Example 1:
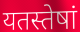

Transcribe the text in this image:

यतस्तेषां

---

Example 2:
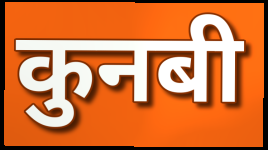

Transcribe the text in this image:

कुनबी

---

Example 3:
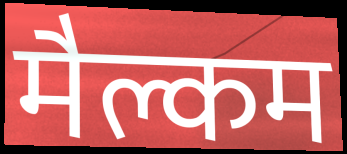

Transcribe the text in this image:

मैल्कम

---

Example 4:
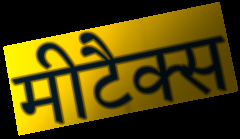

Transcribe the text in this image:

मीटैक्स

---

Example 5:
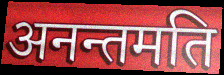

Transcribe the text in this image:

अनन्तमति